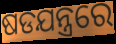
ଷଡଯନ୍ତ୍ରରେ